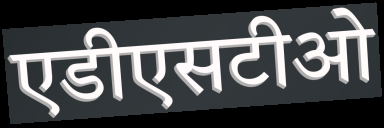
एडीएसटीओ